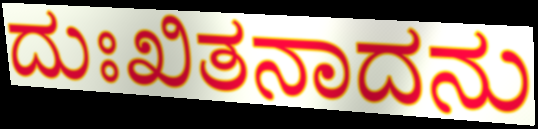
ದುಃಖಿತನಾದನು